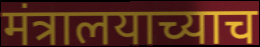
मंत्रालयाच्याच